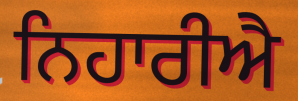
ਨਿਹਾਰੀਐ